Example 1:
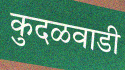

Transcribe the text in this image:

कुदळवाडी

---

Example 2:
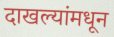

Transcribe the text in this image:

दाखल्यांमधून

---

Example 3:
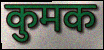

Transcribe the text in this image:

कुमक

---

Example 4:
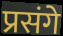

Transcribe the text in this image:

प्रसंगे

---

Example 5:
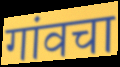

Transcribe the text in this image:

गांवचा